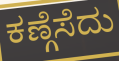
ಕಣ್ಗೆಸೆದು